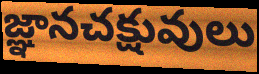
జ్ఞానచక్షువులు